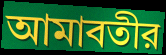
আমাবতীর